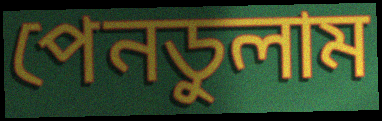
পেনডুলাম